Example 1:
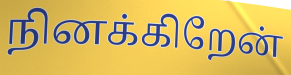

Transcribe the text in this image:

நினக்கிறேன்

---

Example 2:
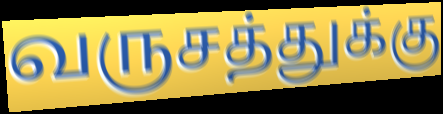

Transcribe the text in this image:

வருசத்துக்கு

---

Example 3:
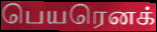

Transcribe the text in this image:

பெயரெனக்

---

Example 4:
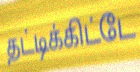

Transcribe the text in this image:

தட்டிக்கிட்டே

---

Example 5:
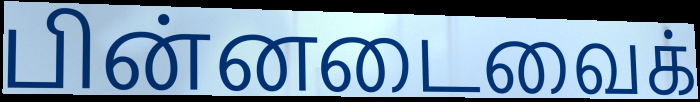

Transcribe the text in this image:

பின்னடைவைக்